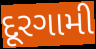
દૂરગામી